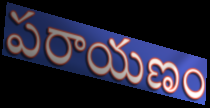
పరాయణం